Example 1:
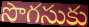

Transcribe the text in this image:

సొగసుకు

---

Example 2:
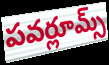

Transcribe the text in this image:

పవర్లూమ్స్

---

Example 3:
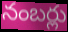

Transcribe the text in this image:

నంబర్లు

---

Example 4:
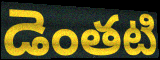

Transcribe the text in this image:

డెంతటి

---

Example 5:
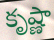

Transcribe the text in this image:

కృష్ణా